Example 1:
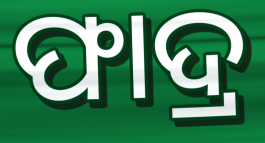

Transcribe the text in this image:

ଫାଦ୍ର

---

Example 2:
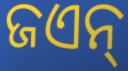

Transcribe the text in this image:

ଜଏନ୍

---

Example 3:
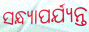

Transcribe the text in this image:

ସନ୍ଧ୍ୟାପର୍ଯ୍ୟନ୍ତ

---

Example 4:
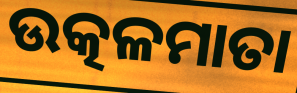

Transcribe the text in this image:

ଉତ୍କଳମାତା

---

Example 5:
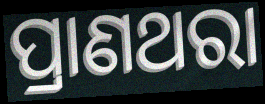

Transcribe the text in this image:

ପ୍ରାଣଥରା